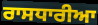
ਰਾਸਧਾਰੀਆ